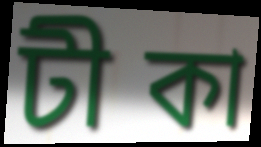
টীকা